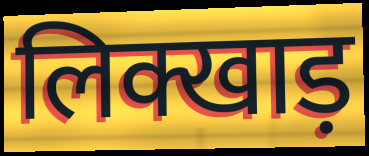
लिक्खाड़